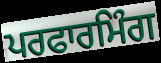
ਪਰਫਾਰਮਿੰਗ